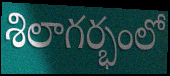
శిలాగర్భంలో